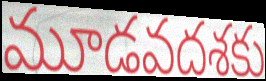
మూడవదశకు